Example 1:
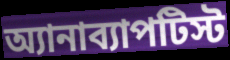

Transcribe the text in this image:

অ্যানাব্যাপটিস্ট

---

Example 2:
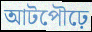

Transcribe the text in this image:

আটপৌঢ়ে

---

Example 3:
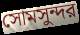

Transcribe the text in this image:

সোমসুন্দর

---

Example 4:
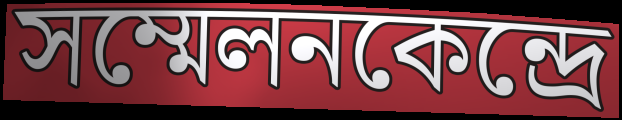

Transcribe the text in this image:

সম্মেলনকেন্দ্রে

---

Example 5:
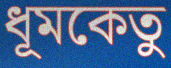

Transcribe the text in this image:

ধূমকেতু